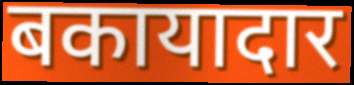
बकायादार